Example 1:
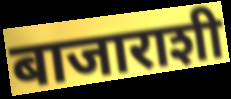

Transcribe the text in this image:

बाजाराशी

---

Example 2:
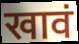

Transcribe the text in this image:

खावं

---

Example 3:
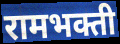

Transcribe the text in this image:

रामभक्ती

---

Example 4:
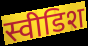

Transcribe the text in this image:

स्वीडिश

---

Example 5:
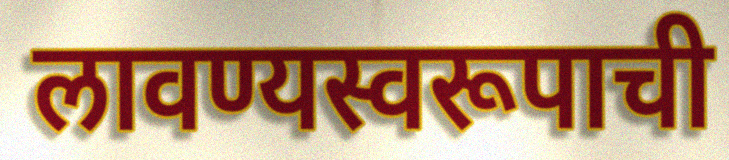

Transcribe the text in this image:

लावण्यस्वरूपाची